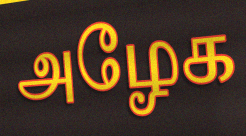
அழேக